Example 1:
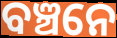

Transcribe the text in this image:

ବଞ୍ଚନେ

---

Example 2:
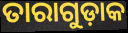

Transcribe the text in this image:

ତାରାଗୁଡ଼ାକ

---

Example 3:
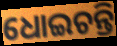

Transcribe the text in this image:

ଧୋଇଚନ୍ତି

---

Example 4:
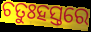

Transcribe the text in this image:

ଚତୁଃହସ୍ତରେ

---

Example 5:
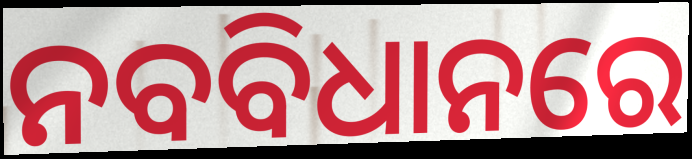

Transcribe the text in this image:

ନବବିଧାନରେ